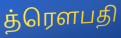
த்ரௌபதி